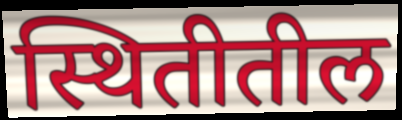
स्थितीतील